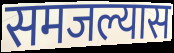
समजल्यास